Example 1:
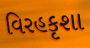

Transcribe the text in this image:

વિરહકૃશા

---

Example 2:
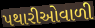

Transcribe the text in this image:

પથારીઓવાળી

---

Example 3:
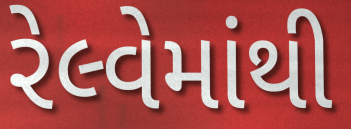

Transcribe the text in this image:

રેલ્વેમાંથી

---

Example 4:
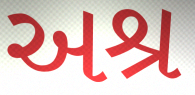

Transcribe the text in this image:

અશ્ર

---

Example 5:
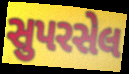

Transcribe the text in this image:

સુપરસેલ